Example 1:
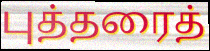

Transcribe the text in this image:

புத்தரைத்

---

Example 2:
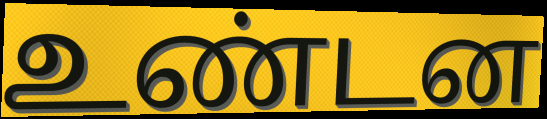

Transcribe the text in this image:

உண்டன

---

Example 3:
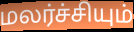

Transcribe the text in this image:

மலர்ச்சியும்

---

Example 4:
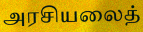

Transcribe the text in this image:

அரசியலைத்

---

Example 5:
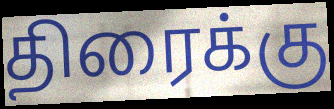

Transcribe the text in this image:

திரைக்கு